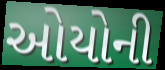
ઓયોની